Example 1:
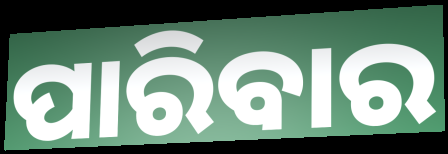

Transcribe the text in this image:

ପାରିବାର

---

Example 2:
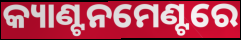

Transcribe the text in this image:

କ୍ୟାଣ୍ଟନମେଣ୍ଟରେ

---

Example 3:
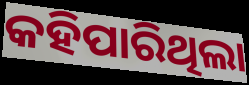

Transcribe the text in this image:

କହିପାରିଥିଲା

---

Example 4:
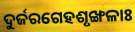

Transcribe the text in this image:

ଦୁର୍ଜରଗେହଶୃଙ୍ଖଳାଃ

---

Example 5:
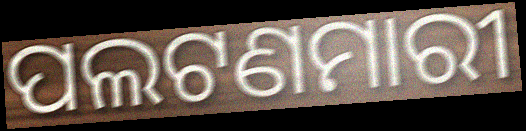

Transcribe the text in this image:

ପଲଟଣମାରୀ